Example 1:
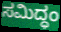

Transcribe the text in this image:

ಸಮಿದ್ಧಂ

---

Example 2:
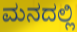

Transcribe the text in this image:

ಮನದಲ್ಲಿ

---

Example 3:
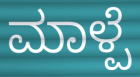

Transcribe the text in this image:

ಮಾಳ್ಪೆ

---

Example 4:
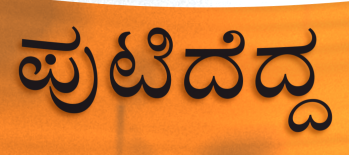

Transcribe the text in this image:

ಪುಟಿದೆದ್ದ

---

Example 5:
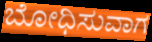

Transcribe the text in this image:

ಬೋಧಿಸುವಾಗ